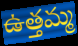
ఉత్తమ్మ